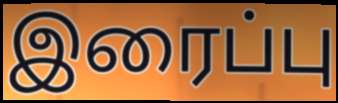
இரைப்பு